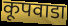
कूपवाडा